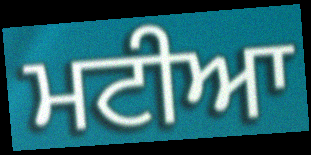
ਮਟੀਆ